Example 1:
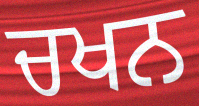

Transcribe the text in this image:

ਚਖਨ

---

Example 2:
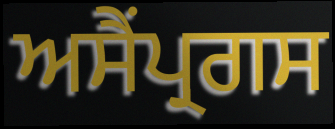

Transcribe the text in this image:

ਅਸੈਂਪ੍ਰਗਸ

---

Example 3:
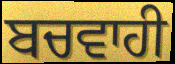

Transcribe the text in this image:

ਬਚਵਾਹੀ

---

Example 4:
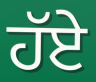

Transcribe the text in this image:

ਹੱਏ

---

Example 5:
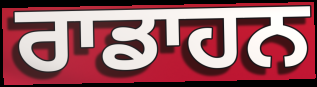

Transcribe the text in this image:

ਰਾਡਾਹਨ